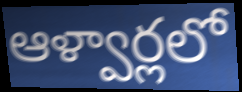
ఆళ్వార్లలో